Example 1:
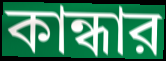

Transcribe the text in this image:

কান্ধার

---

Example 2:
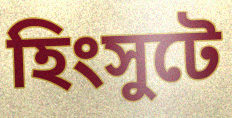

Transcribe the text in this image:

হিংসুটে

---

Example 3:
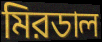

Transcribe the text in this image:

মিরডাল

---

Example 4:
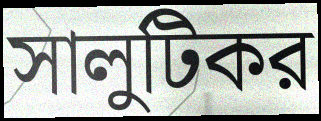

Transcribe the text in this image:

সালুটিকর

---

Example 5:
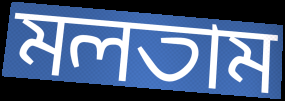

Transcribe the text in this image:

মলতাম